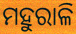
ମହୁରାଳି